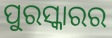
ପୁରସ୍କାରର